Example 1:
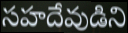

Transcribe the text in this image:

సహదేవుడిని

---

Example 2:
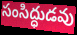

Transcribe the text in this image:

సంసిద్ధుడవు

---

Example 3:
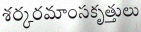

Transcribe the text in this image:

శర్కరమాంసకృత్తులు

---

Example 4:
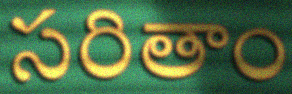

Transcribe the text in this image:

సరితాం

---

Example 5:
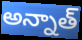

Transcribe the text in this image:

అన్నాత్